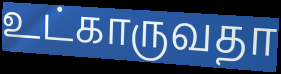
உட்காருவதா